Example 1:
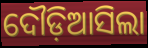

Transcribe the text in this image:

ଦୌଡ଼ିଆସିଲା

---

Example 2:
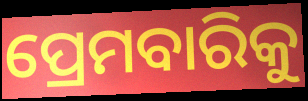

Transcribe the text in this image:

ପ୍ରେମବାରିକୁ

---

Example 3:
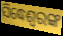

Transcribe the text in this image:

ସିଦ୍ଧେଶ୍ୱରଙ୍କ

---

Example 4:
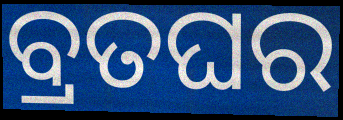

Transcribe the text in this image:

ବ୍ରତଘର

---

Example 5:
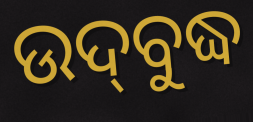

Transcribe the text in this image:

ଉଦ୍‍ବୁଦ୍ଧ